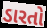
ડારતો